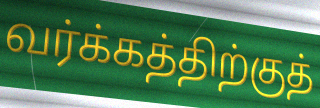
வர்க்கத்திற்குத்